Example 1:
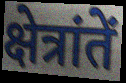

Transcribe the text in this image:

क्षेत्रांतें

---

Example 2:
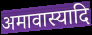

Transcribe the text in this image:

अमावास्यादि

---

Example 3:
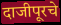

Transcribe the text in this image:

दाजीपूरचे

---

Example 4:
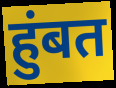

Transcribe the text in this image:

हुंबत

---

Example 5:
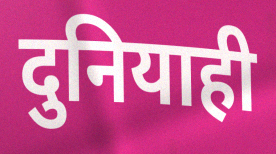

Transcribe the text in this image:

दुनियाही